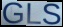
GLS